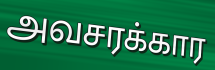
அவசரக்கார